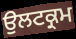
ਉਲਟਕ੍ਰਮ